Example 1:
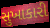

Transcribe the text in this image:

સુખાકારી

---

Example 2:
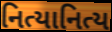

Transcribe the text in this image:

નિત્યાનિત્ય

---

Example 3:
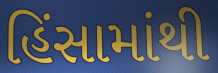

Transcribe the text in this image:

હિંસામાંથી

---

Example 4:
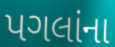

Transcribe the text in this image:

પગલાંના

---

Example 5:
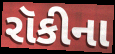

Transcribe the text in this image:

રૉકીના